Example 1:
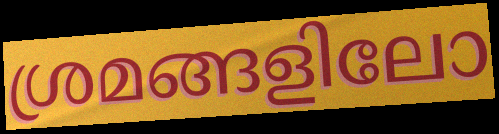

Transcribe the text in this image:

ശ്രമങ്ങളിലോ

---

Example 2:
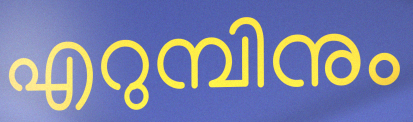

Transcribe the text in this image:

എറുമ്പിനും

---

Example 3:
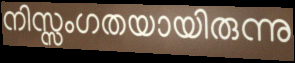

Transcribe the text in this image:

നിസ്സംഗതയായിരുന്നു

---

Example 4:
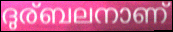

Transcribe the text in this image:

ദുര്ബലനാണ്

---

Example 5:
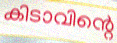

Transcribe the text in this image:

കിടാവിന്റെ